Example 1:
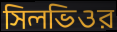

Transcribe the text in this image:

সিলভিওর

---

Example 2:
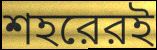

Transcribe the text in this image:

শহরেরই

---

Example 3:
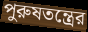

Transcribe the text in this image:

পুরুষতন্ত্রের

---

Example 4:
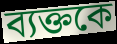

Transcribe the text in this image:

ব্যক্তকে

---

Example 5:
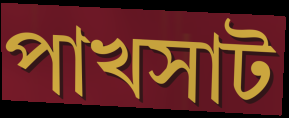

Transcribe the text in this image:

পাখসাট